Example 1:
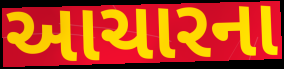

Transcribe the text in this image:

આચારના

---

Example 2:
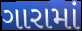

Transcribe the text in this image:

ગારામાં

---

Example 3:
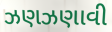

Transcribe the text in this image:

ઝણઝણાવી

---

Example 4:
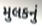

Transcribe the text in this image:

મુલકનું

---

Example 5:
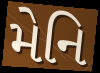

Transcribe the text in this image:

મેનિ